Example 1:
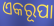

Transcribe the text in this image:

ଏକରୂପା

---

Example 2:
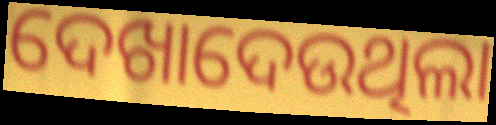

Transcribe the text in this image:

ଦେଖାଦେଉଥିଲା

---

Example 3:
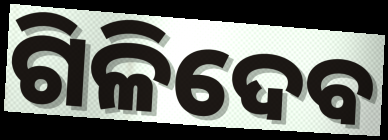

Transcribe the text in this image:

ଗିଳିଦେବ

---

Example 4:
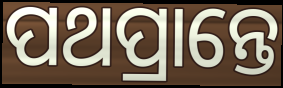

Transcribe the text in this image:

ପଥପ୍ରାନ୍ତେ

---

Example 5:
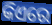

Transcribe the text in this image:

କିଏରେ